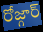
రోజ్గార్